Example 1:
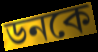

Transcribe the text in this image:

ডনকে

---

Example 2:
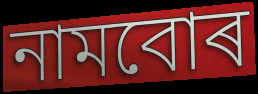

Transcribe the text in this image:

নামবোৰ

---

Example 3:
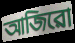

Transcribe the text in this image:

আজিৱো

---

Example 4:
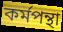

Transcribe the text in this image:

কৰ্মপন্থা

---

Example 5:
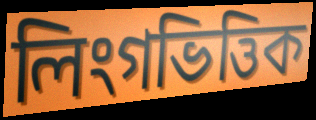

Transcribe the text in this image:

লিংগভিত্তিক